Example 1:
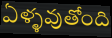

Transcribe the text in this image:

ఏళ్ళవుతోంది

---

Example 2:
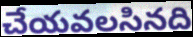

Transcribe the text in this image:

చేయవలసినది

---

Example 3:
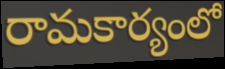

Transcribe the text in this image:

రామకార్యంలో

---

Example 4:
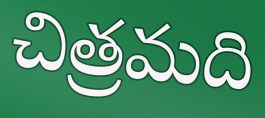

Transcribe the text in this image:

చిత్రమది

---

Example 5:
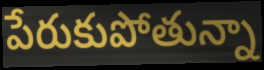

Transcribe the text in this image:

పేరుకుపోతున్నా